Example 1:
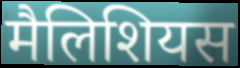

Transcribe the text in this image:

मैलिशियस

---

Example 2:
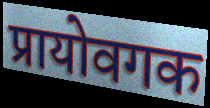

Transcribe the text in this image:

प्रायोवगक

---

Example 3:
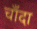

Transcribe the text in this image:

चाँदा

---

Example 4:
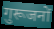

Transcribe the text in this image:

गुरूजनों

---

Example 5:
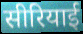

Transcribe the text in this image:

सीरियाई